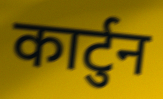
कार्टुन